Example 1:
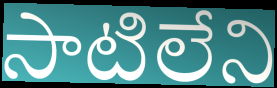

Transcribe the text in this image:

సాటిలేని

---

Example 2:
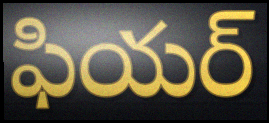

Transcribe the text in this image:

ఫియర్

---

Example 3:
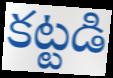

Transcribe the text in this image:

కట్టడి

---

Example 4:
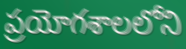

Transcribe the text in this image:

ప్రయోగశాలలోని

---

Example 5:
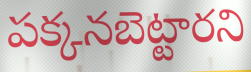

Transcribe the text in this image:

పక్కనబెట్టారని